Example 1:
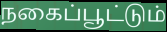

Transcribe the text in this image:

நகைப்பூட்டும்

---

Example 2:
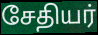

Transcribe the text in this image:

சேதியர்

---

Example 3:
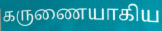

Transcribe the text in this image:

கருணையாகிய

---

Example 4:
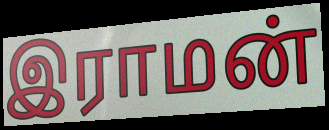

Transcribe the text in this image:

இராமன்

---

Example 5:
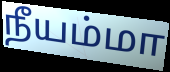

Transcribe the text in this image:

நீயம்மா